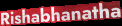
Rishabhanatha